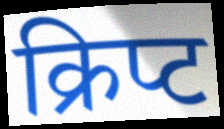
क्रिप्ट